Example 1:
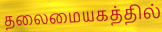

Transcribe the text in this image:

தலைமையகத்தில்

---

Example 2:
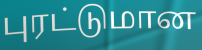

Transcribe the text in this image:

புரட்டுமான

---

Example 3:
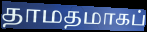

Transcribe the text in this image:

தாமதமாகப்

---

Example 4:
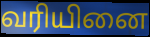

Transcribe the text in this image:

வரியினை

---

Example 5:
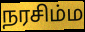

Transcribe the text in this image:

நரசிம்ம